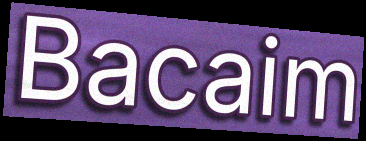
Bacaim